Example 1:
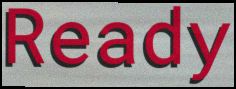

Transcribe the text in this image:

Ready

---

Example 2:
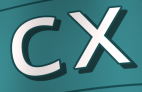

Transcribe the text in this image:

cx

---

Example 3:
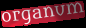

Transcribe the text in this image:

organum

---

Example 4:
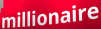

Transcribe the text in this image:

millionaire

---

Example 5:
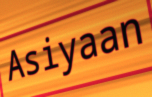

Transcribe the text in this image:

Asiyaan